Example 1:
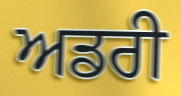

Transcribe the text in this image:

ਅਡਰੀ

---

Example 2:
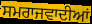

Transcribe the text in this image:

ਸਮਰਾਜਵਾਦੀਆਂ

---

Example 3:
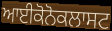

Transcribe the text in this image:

ਆਈਕੋਨੋਕਲਾਸਟ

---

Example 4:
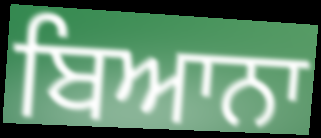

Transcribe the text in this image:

ਬਿਆਨਾ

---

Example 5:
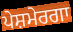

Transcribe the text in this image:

ਪੇਸ਼ਮੇਰਗਾ